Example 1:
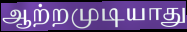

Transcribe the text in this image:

ஆற்றமுடியாது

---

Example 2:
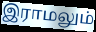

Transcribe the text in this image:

இராமலும்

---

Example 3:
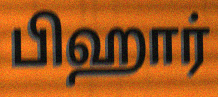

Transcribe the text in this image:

பிஹார்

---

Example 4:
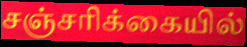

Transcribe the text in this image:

சஞ்சரிக்கையில்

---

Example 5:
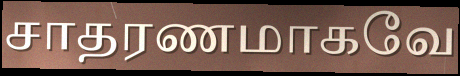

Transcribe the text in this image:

சாதரணமாகவே